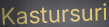
Kastursuri